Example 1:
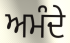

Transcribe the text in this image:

ਅਮੰਦੇ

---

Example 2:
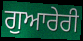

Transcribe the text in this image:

ਗੁਆਰੇਰੀ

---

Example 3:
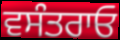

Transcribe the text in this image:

ਵਸੰਤਰਾਓ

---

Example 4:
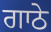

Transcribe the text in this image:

ਗਾਠੇ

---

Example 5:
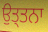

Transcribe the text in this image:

ਉਤ੍ਤਨਾ